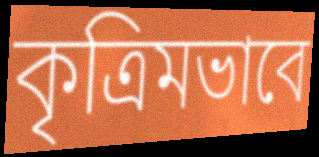
কৃত্রিমভাবে